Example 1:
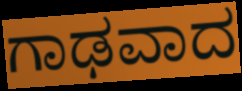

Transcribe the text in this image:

ಗಾಢವಾದ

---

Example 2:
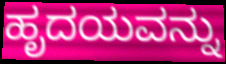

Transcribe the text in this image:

ಹೃದಯವನ್ನು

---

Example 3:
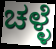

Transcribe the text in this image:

ಚಳ್ಳೆ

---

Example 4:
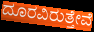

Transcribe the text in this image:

ದೂರವಿರುತ್ತೇವೆ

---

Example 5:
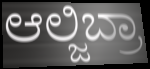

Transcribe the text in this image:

ಆಲ್ಜಿಬ್ರಾ